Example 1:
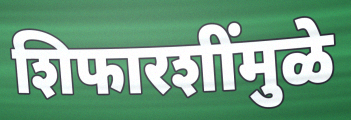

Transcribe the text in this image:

शिफारशींमुळे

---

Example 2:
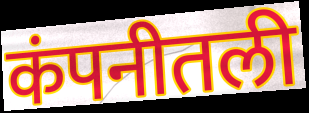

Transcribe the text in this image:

कंपनीतली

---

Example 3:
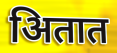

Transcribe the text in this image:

अितात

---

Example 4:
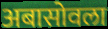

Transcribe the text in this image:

अबासोवला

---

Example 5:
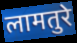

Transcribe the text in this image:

लामतुरे